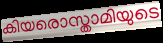
കിയരൊസ്താമിയുടെ